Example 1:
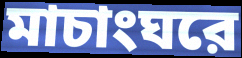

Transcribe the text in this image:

মাচাংঘরে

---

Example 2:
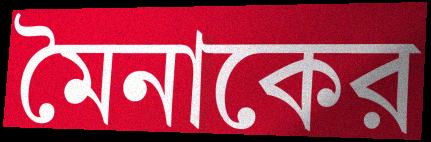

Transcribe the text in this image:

মৈনাকের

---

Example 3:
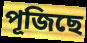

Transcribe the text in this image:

পূজিছে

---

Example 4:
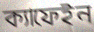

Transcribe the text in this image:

ক্যাফেইন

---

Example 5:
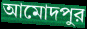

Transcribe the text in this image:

আমোদপুর